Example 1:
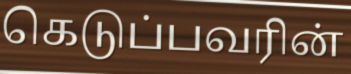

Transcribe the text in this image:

கெடுப்பவரின்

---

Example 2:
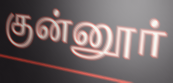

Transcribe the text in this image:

குன்னூர்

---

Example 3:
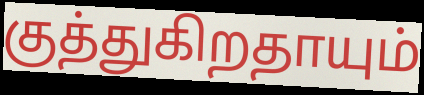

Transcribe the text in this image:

குத்துகிறதாயும்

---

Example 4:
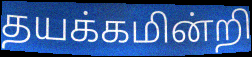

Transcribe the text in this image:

தயக்கமின்றி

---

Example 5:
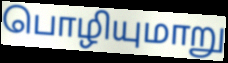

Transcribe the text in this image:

பொழியுமாறு